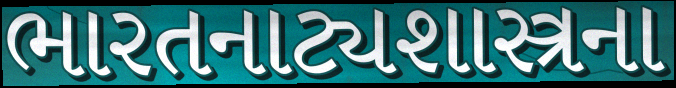
ભારતનાટ્યશાસ્ત્રના